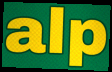
alp